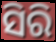
ସିରି